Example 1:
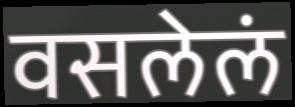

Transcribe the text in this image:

वसलेलं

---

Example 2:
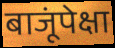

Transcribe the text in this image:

बाजूंपेक्षा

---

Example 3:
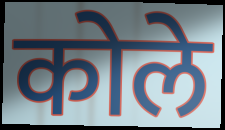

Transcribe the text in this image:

कोले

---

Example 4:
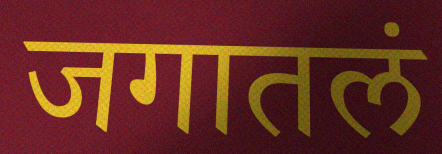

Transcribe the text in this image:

जगातलं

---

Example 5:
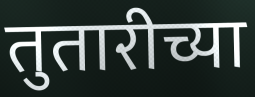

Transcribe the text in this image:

तुतारीच्या